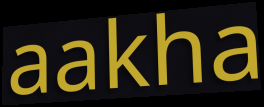
aakha